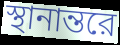
স্থানান্তরে